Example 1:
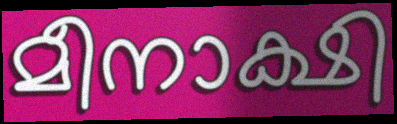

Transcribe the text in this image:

മീനാക്ഷി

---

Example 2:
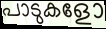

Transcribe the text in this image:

പാടുകളോ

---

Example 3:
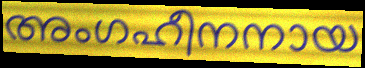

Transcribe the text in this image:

അംഗഹീനനായ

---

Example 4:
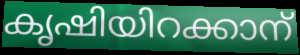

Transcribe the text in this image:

കൃഷിയിറക്കാന്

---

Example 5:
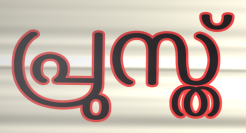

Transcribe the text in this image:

പ്രുസ്ത്